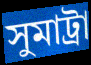
সুমাট্ৰা